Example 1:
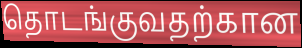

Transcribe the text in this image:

தொடங்குவதற்கான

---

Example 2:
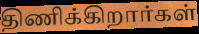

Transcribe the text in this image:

திணிக்கிறார்கள்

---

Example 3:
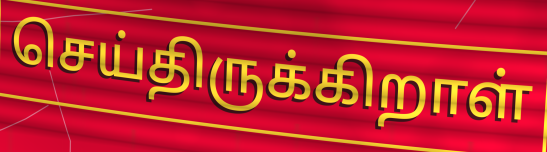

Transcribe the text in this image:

செய்திருக்கிறாள்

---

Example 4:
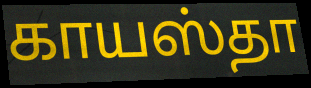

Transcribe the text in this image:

காயஸ்தா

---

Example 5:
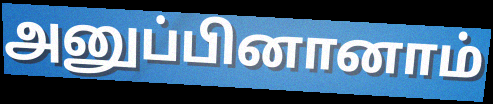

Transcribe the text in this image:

அனுப்பினானாம்